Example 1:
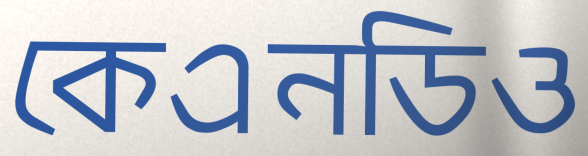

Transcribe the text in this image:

কেএনডিও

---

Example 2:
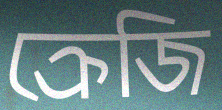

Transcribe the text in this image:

ক্রেজি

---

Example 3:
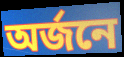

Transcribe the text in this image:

অর্জনে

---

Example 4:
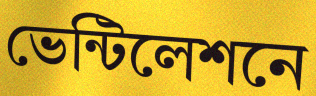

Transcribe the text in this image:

ভেন্টিলেশনে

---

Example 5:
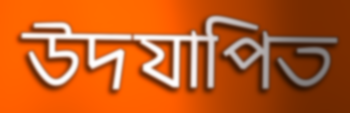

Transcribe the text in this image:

উদযাপিত